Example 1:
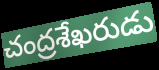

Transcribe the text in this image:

చంద్రశేఖరుడు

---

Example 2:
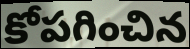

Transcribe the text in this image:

కోపగించిన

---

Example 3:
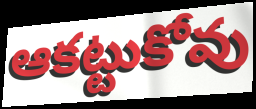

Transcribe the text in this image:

ఆకట్టుకోవు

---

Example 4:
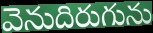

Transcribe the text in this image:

వెనుదిరుగును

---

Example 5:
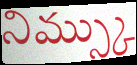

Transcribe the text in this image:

నిమ్స్కు